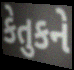
કેતુકને